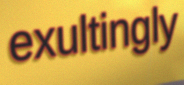
exultingly